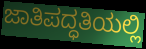
ಜಾತಿಪದ್ಧತಿಯಲ್ಲಿ